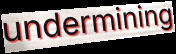
undermining